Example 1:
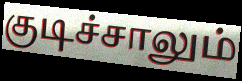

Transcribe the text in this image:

குடிச்சாலும்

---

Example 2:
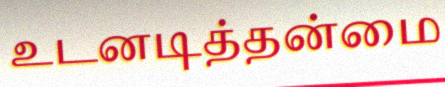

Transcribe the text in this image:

உடனடித்தன்மை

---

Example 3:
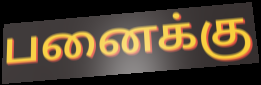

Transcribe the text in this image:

பனைக்கு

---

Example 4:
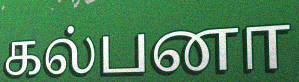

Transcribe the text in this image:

கல்பனா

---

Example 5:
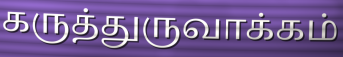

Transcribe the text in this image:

கருத்துருவாக்கம்